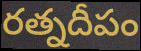
రత్నదీపం